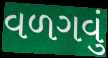
વળગવું